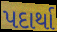
પદાર્થા